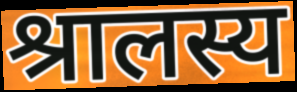
श्रालस्य